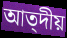
আত্দীয়